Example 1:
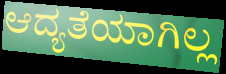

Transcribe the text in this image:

ಆದ್ಯತೆಯಾಗಿಲ್ಲ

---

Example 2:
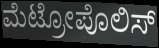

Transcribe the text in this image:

ಮೆಟ್ರೋಪೊಲಿಸ್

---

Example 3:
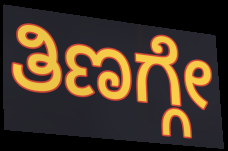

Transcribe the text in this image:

ತಿಣಗ್ಗೇ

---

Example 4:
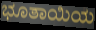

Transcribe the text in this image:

ಭೂತಾಯಿಯ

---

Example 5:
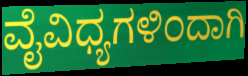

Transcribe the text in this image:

ವೈವಿಧ್ಯಗಳಿಂದಾಗಿ